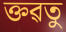
ক্তৱতু